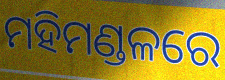
ମହିମଣ୍ଡଳରେ